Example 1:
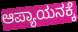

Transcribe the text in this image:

ಆಪ್ಯಾಯನಕ್ಕೆ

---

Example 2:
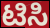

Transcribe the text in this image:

ಟಿಸಿ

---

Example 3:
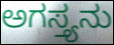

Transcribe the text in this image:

ಅಗಸ್ತ್ಯನು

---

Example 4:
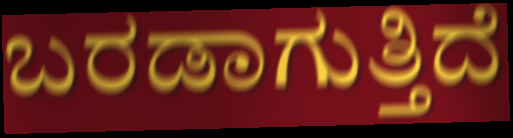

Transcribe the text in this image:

ಬರಡಾಗುತ್ತಿದೆ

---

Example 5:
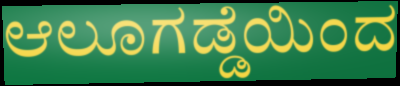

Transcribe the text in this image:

ಆಲೂಗಡ್ಡೆಯಿಂದ